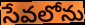
సేవలోను